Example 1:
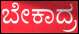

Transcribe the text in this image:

ಬೇಕಾದ್ರ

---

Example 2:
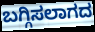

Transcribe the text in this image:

ಬಗ್ಗಿಸಲಾಗದ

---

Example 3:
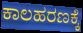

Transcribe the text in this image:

ಕಾಲಹರಣಕ್ಕೆ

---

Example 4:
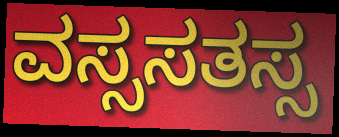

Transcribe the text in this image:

ವಸ್ಸಸತಸ್ಸ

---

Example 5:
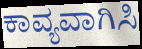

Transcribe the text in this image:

ಕಾವ್ಯವಾಗಿಸಿ